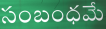
సంబంధమే